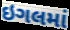
ઇગલમાં